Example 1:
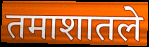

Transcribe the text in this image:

तमाशातले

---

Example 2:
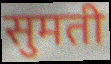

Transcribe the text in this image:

सुमती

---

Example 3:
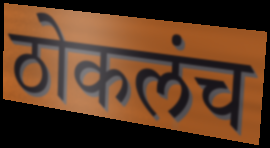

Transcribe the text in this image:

ठोकलंच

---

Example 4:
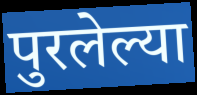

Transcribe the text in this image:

पुरलेल्या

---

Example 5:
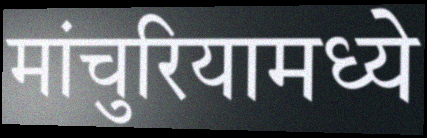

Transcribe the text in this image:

मांचुरियामध्ये